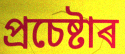
প্ৰচেষ্টাৰ